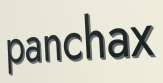
panchax